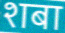
शबा